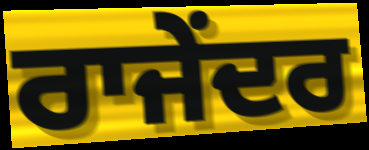
ਰਾਜੇਂਦਰ